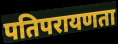
पतिपरायणता